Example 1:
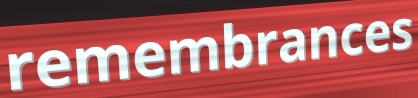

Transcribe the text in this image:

remembrances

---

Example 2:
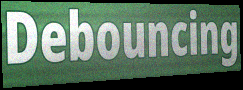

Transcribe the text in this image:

Debouncing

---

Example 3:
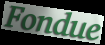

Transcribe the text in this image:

Fondue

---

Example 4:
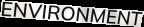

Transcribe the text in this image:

ENVIRONMENT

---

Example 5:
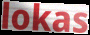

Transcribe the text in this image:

lokas